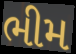
ભીમ